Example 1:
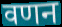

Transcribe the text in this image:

वणन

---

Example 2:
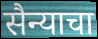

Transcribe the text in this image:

सैन्याचा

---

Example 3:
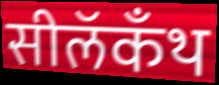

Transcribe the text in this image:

सीलॅकँथ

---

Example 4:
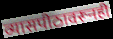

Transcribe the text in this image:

व्यासपीठावरूनही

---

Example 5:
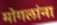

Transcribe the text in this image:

मोगलांना